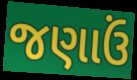
જણાઉં